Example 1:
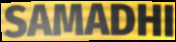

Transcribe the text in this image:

SAMADHI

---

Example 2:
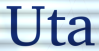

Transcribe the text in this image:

Uta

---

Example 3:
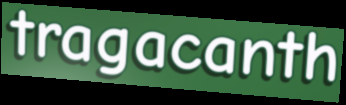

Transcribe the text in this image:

tragacanth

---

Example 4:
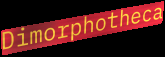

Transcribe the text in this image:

Dimorphotheca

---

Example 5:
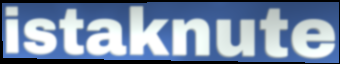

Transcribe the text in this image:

istaknute